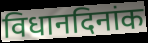
विधानदिनांक